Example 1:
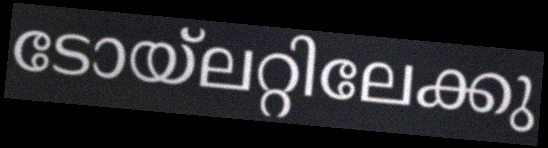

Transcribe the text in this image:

ടോയ്ലറ്റിലേക്കു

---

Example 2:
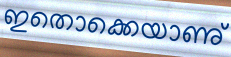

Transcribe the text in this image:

ഇതൊക്കെയാണു്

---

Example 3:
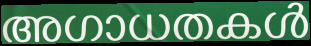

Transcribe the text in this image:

അഗാധതകൾ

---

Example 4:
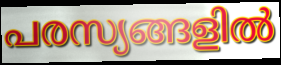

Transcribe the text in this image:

പരസ്യങ്ങളിൽ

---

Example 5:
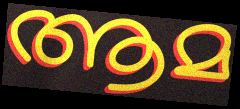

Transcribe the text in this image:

ആമ